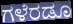
ಗಳೆರಡೂ